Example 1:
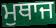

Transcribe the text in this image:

ਮੁਥਾਜ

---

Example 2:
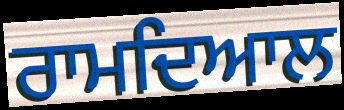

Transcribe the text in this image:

ਰਾਮਦਿਆਲ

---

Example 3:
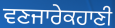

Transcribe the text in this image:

ਵਣਜਾਰੇਕਹਾਣੀ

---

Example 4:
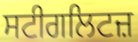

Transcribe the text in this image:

ਸਟੀਗਲਿਟਜ਼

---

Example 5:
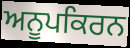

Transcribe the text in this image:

ਅਨੂਪਕਿਰਨ